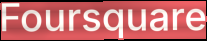
Foursquare